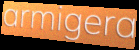
armigera